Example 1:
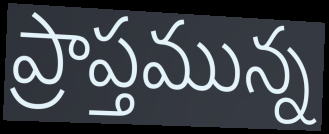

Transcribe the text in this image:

ప్రాప్తమున్న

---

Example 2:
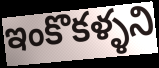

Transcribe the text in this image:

ఇంకొకళ్ళని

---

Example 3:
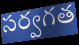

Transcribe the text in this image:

సర్వగత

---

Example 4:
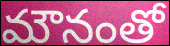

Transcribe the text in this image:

మౌనంతో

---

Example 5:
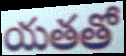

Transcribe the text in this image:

యతతో